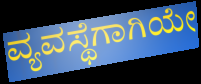
ವ್ಯವಸ್ಥೆಗಾಗಿಯೇ